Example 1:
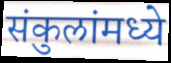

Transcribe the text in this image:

संकुलांमध्ये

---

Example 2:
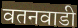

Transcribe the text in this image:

वतनवाडी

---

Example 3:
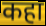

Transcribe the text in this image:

कहा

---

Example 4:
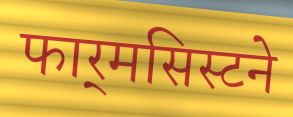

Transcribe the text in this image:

फार्मसिस्टने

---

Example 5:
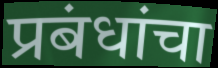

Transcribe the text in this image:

प्रबंधांचा